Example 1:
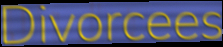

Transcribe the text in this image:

Divorcees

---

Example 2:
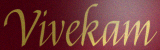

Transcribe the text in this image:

Vivekam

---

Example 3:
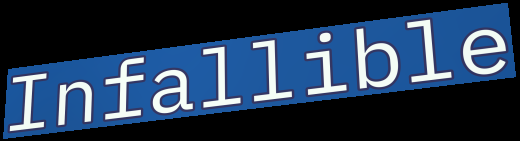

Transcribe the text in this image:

Infallible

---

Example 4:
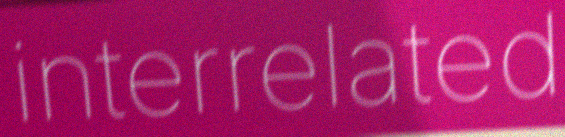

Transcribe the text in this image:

interrelated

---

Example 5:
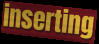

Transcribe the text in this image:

inserting